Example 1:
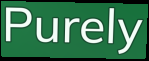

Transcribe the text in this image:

Purely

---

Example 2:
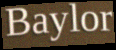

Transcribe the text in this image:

Baylor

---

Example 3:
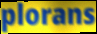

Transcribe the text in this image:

plorans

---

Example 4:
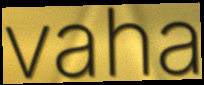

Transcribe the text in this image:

vaha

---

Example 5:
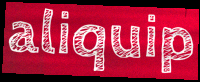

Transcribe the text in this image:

aliquip